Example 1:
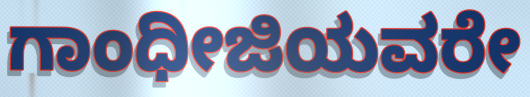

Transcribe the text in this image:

ಗಾಂಧೀಜಿಯವರೇ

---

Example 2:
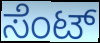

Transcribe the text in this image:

ಸೆಂಟ್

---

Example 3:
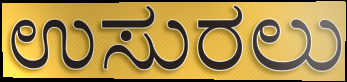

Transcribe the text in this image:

ಉಸುರಲು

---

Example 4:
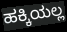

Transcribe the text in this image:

ಹಕ್ಕಿಯಲ್ಲ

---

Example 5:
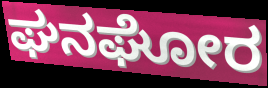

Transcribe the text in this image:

ಘನಘೋರ